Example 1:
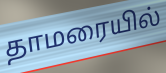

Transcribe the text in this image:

தாமரையில்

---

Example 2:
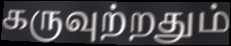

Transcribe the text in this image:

கருவுற்றதும்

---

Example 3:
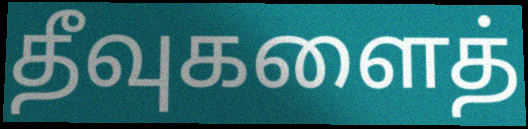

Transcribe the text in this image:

தீவுகளைத்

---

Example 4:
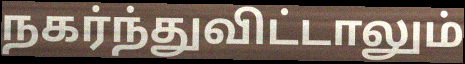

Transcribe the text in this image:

நகர்ந்துவிட்டாலும்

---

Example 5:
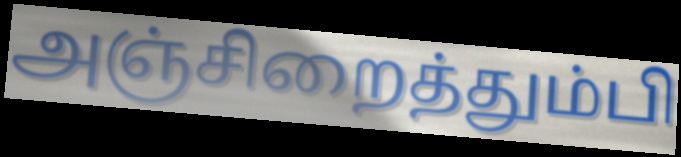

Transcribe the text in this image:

அஞ்சிறைத்தும்பி